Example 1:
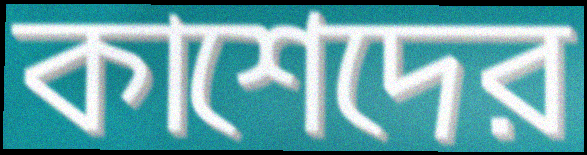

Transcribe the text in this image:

কাশেদের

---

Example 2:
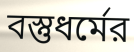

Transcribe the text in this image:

বস্তুধর্মের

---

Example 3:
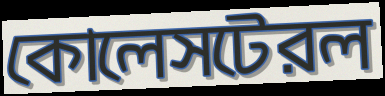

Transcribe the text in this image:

কোলেসটেরল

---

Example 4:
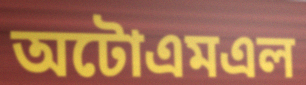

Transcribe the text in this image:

অটোএমএল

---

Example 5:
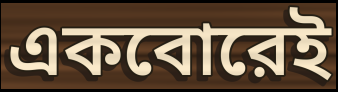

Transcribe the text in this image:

একবোরেই